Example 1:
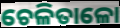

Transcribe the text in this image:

ଚେଳିତାଳୋ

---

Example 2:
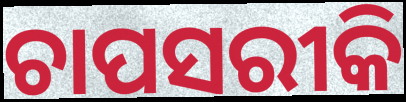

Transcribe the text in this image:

ଚାପସରୀକି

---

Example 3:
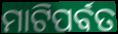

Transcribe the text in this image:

ମାଟିପର୍ବତ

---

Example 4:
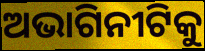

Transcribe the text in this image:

ଅଭାଗିନୀଟିକୁ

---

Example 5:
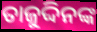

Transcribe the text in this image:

ତାଜୁଦ୍ଦିନଙ୍କ